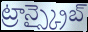
ట్రాన్స్క్రైబ్